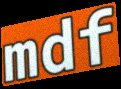
mdf